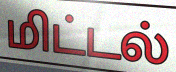
மிட்டல்